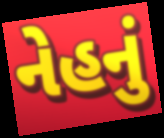
નેહનું